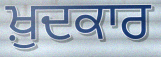
ਖ਼ੁਦਕਾਰ